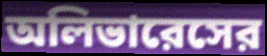
অলিভারেসের